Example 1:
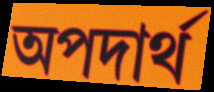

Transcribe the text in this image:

অপদার্থ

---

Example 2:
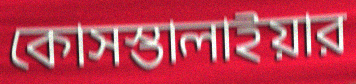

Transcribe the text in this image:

কোসস্তালাইয়ার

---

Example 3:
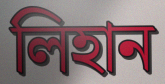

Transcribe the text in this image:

লিহান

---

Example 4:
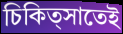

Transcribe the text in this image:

চিকিত্সাতেই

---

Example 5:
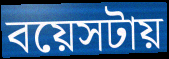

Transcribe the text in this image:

বয়েসটায়